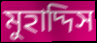
মুহাদ্দিস